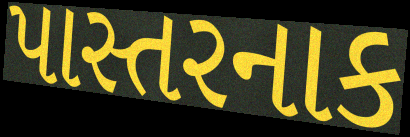
પાસ્તરનાક